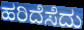
ಹರಿದೆಸೆದು